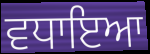
ਵਧਾਇਆ